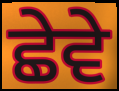
ਛੇਵੇ